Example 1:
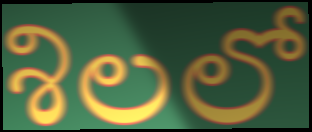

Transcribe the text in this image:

శిలలో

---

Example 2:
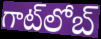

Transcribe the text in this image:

గాట్‍లోబ్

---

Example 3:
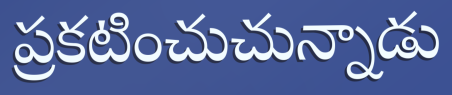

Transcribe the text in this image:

ప్రకటించుచున్నాడు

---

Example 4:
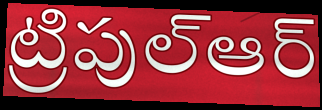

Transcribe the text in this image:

ట్రిపుల్ఆర్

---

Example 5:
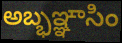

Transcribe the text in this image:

అబ్భఞ్ఞాసిం